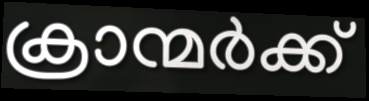
ക്രാന്മർക്ക്